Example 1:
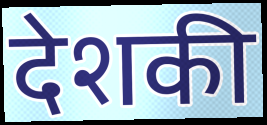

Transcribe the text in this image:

देशकी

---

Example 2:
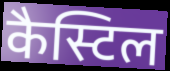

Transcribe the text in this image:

कैस्टिल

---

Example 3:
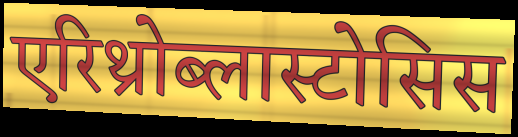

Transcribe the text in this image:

एरिथ्रोब्लास्टोसिस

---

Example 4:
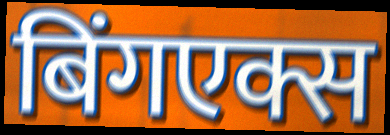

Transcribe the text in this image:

बिंगएक्स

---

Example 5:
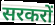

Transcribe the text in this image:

सरकरों